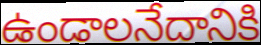
ఉండాలనేదానికి